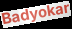
Badyokar